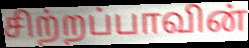
சிற்றப்பாவின்